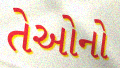
તેઓનો